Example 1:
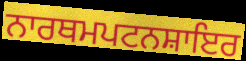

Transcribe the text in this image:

ਨਾਰਥਮਪਟਨਸ਼ਾਇਰ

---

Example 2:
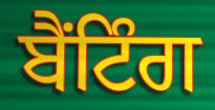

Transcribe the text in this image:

ਬੈਂਟਿੰਗ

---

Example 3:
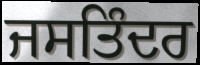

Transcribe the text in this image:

ਜਸਤਿੰਦਰ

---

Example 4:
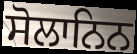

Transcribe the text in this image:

ਸੋਲਾਨਿਨ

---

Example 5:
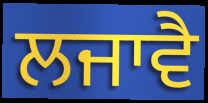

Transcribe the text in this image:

ਲਜਾਵੈ